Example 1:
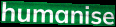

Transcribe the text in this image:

humanise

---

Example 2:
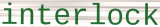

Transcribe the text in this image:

interlock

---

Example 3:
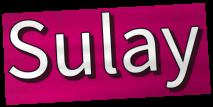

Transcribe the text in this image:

Sulay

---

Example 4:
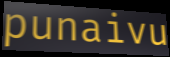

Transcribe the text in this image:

punaivu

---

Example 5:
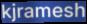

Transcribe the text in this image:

kjramesh